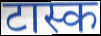
टास्क